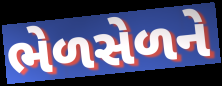
ભેળસેળને